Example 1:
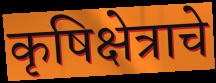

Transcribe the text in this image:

कृषिक्षेत्राचे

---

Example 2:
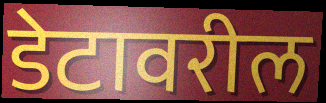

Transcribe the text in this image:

डेटावरील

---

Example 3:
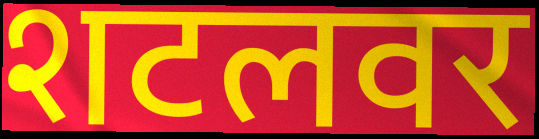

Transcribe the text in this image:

शटलवर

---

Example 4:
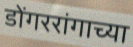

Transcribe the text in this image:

डोंगररांगाच्या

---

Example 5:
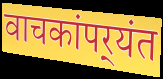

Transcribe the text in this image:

वाचकांपर्यंत